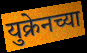
युक्रेनच्या